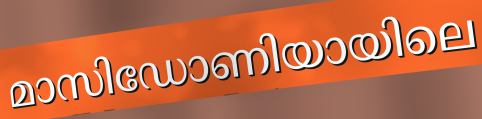
മാസിഡോണിയായിലെ